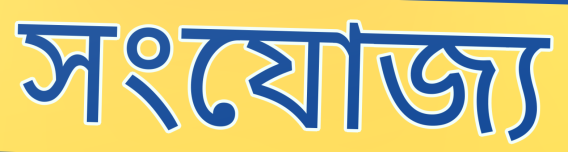
সংযোজ্য